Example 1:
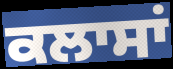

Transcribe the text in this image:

ਕਲਾਸਾਂ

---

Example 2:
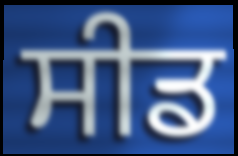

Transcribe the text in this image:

ਸੀਡ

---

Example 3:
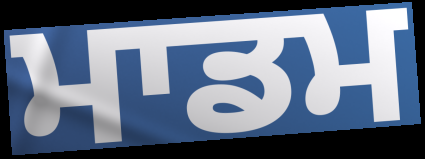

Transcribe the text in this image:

ਮਾਡਮ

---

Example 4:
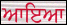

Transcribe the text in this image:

ਆਇਆ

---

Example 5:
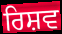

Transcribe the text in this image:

ਰਿਸ਼ਵ